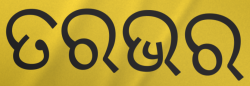
ତରଭର